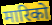
मारिको